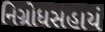
નિગ્રોધસહાયં